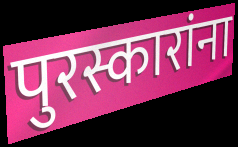
पुरस्कारांना